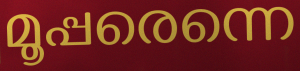
മൂപ്പരെന്നെ